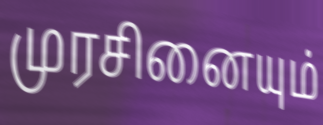
முரசினையும்